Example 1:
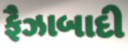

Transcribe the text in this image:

ફૈઝાબાદી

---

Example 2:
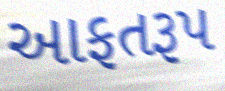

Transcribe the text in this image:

આફતરૂપ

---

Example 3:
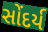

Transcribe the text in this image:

સોંદર્ય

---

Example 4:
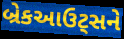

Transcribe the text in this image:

બ્રેકઆઉટ્સને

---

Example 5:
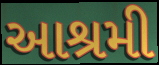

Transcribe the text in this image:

આશ્રમી